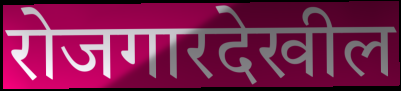
रोजगारदेखील